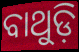
ବାଥୁଡ଼ି